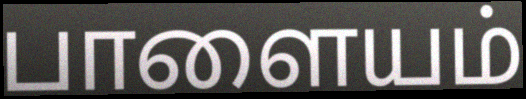
பாளையம்